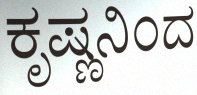
ಕೃಷ್ಣನಿಂದ